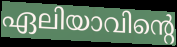
ഏലിയാവിന്റെ